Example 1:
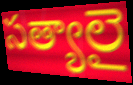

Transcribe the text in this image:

సత్యాలై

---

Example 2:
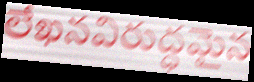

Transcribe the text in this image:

లేఖనవిరుద్ధమైన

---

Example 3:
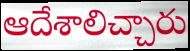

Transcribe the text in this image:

ఆదేశాలిచ్చారు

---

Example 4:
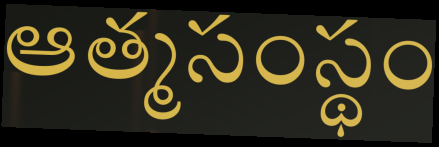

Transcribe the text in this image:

ఆత్మసంస్థం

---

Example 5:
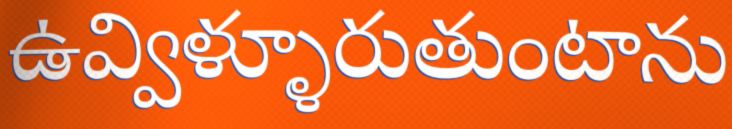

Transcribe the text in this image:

ఉవ్విళ్ళూరుతుంటాను